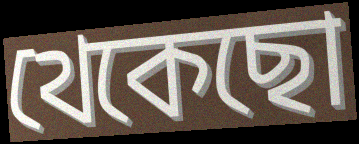
থেকেছো